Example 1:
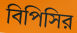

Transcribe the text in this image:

বিপিসির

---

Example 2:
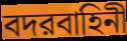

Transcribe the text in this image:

বদরবাহিনী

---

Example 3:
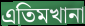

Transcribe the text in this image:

এতিমখানা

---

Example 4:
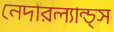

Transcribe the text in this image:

নেদারল্যান্ড্‌স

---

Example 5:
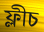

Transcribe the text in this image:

ফ্লীচ